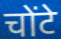
चोंटे